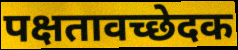
पक्षतावच्छेदक